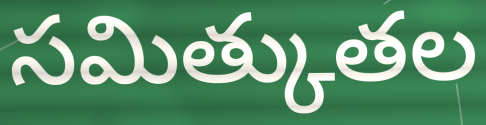
సమిత్కుతల